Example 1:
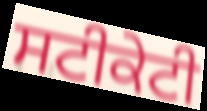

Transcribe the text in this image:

ਸਟੀਕੇਟੀ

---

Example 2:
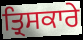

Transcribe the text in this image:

ਤ੍ਰਿਸਕਾਰੇ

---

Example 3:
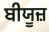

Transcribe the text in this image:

ਬੀਯੂਜ਼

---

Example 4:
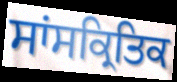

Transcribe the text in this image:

ਸਾਂਸਕ੍ਰਿਤਿਕ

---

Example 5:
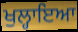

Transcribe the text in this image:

ਖੁਲ੍ਹਾਇਆ